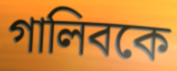
গালিবকে